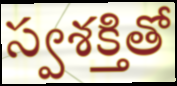
స్వశక్తితో